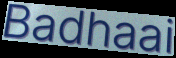
Badhaai